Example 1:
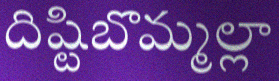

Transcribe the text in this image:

దిష్టిబొమ్మల్లా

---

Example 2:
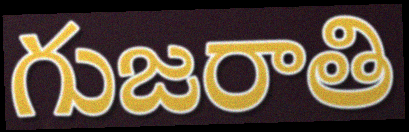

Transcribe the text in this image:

గుజరాతి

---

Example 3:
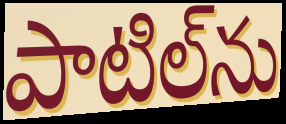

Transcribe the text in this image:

పాటిల్‌ను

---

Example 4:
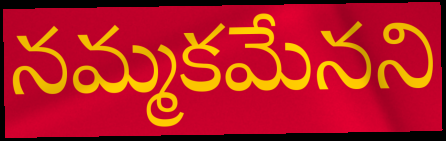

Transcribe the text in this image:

నమ్మకమేనని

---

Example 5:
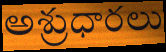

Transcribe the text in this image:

అశ్రుధారలు